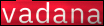
vadana